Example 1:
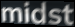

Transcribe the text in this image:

midst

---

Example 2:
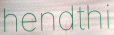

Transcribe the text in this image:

hendthi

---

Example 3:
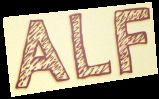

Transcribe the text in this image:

ALF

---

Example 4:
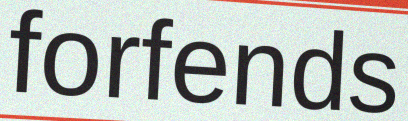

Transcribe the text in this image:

forfends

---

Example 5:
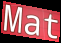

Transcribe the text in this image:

Mat